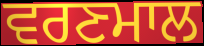
ਵਰਣਮਾਲ